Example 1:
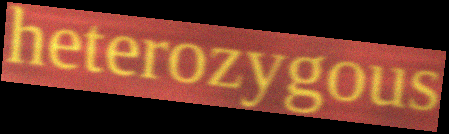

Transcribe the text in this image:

heterozygous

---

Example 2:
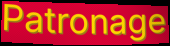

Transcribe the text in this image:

Patronage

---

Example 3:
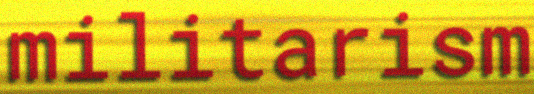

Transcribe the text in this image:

militarism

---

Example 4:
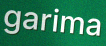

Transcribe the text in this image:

garima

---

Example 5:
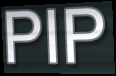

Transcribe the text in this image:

PIP